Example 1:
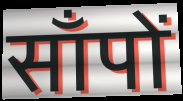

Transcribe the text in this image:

साँपों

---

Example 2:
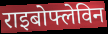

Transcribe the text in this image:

राइबोफ्लेविन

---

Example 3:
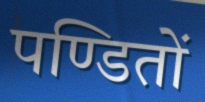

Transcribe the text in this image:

पण्डितों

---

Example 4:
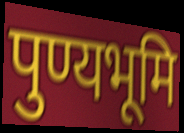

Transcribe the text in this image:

पुण्यभूमि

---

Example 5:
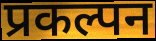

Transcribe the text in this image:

प्रकल्पन